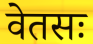
वेतसः